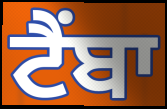
ਟੈਂਬਾ